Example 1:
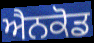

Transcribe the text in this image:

ਐਨਕੋਡ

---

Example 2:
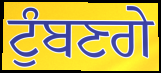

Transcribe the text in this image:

ਟੁੰਬਣਗੇ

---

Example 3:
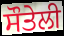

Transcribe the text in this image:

ਸੌਤੇਲੀ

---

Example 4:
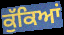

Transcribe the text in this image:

ਕੁੱਕਿਆਂ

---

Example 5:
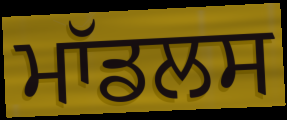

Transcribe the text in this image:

ਮਾੱਡਲਸ